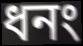
ধনং